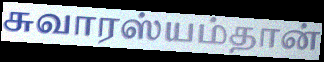
சுவாரஸ்யம்தான்